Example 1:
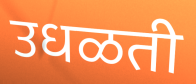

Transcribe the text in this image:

उधळती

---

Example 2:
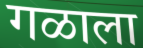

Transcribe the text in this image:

गळाला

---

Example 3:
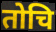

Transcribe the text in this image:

तोचि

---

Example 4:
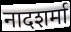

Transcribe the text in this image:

नादशर्मा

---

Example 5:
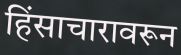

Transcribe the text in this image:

हिंसाचारावरून